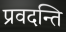
प्रवदन्ति